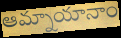
ఆమ్నాయానాం